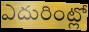
ఎదురింట్లో